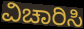
ವಿಚಾರಿಸಿ